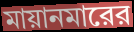
মায়ানমারের